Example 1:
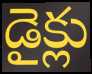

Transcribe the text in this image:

డైక్లు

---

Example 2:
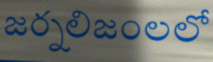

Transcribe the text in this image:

జర్నలిజంలలో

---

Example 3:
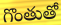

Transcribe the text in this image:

గొంతుతో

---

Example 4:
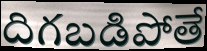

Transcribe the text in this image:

దిగబడిపోతే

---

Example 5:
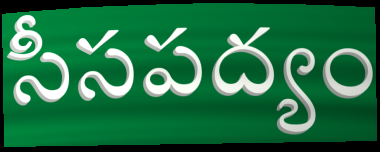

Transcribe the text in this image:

సీసపద్యం